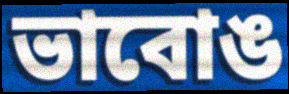
ভাবোঙ